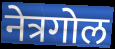
नेत्रगोल